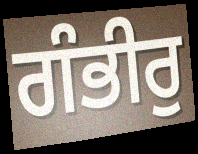
ਗੰਭੀਰੁ